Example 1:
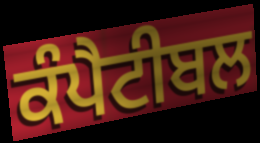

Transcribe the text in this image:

ਕੰਪੈਟੀਬਲ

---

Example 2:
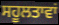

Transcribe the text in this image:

ਸਹੂਲਤਾਵਾਂ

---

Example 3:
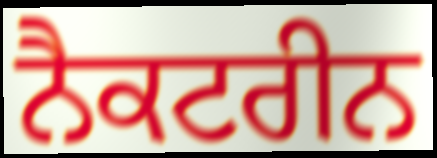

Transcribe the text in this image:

ਨੈਕਟਰੀਨ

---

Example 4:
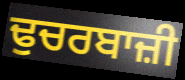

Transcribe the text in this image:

ਢੁਚਰਬਾਜ਼ੀ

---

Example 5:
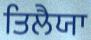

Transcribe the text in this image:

ਤਿਲੈਯਾ